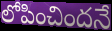
లోపించిందనే